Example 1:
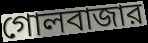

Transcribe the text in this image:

গোলবাজার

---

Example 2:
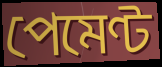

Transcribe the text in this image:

পেমেণ্ট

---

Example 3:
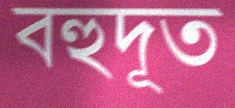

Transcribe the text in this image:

বহুদূত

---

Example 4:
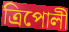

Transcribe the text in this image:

ত্রিপোলী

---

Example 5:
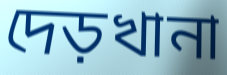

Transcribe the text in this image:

দেড়খানা